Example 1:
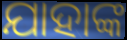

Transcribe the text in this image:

ଯାହାଙ୍କ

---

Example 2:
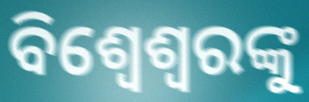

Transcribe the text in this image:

ବିଶ୍ୱେଶ୍ୱରଙ୍କୁ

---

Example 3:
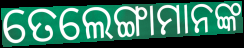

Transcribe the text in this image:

ତେଲେଙ୍ଗାମାନଙ୍କ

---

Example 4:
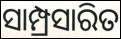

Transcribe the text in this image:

ସାମ୍ପ୍ରସାରିତ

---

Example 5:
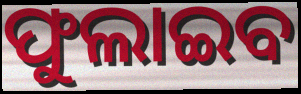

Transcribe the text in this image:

ଫୁଲାଇବ